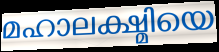
മഹാലക്ഷ്മിയെ